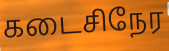
கடைசிநேர